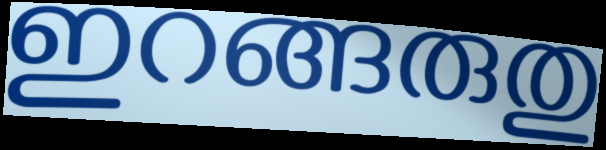
ഇറങ്ങരുതു